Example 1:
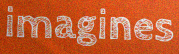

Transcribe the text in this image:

imagines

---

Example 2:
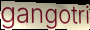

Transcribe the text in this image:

gangotri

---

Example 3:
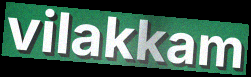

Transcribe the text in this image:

vilakkam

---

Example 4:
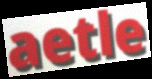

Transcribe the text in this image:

aetle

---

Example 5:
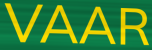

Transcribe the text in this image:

VAAR